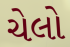
ચેલો